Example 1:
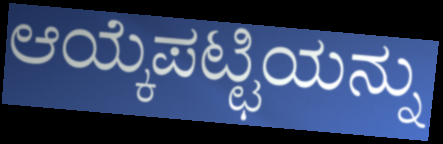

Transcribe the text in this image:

ಆಯ್ಕೆಪಟ್ಟಿಯನ್ನು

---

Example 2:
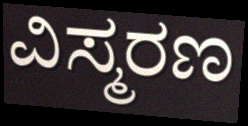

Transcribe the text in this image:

ವಿಸ್ಮರಣ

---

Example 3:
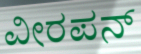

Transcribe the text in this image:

ವೀರಪನ್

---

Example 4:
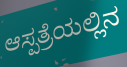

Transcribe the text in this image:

ಆಸ್ಪತ್ರೆಯಲ್ಲಿನ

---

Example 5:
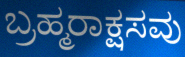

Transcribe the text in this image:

ಬ್ರಹ್ಮರಾಕ್ಷಸವು